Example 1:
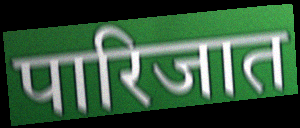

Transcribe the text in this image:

पारिजात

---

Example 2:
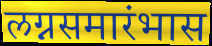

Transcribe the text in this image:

लग्नसमारंभास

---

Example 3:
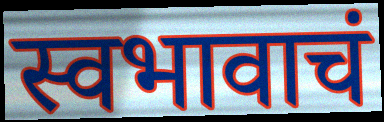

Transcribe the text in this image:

स्वभावाचं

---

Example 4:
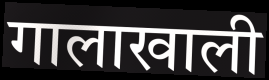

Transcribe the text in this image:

गालाखाली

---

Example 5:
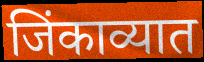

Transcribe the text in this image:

जिंकाव्यात